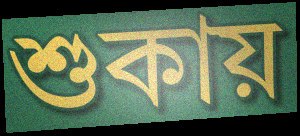
শুকায়